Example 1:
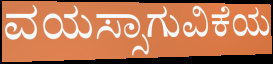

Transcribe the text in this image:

ವಯಸ್ಸಾಗುವಿಕೆಯ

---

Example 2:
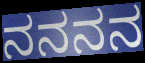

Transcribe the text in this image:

ನನನನ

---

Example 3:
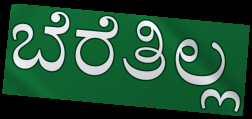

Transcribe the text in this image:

ಬೆರೆತಿಲ್ಲ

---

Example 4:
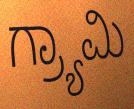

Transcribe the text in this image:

ಗ್ರ್ಯಾಮಿ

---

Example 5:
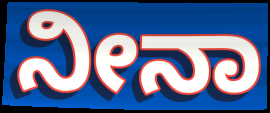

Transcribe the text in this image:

ನೀನಾ